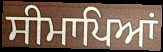
ਸੀਮਾਪਿਆਂ